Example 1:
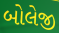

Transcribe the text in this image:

બોલેજી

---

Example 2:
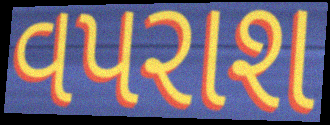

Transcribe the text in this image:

વપરાશ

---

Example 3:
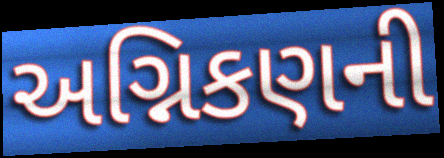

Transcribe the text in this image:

અગ્નિકણની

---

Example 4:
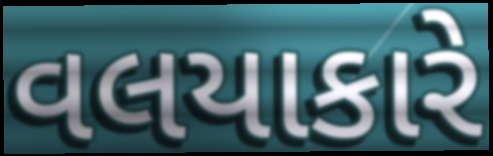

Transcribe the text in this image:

વલયાકારે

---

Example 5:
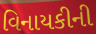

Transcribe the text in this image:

વિનાયકીની